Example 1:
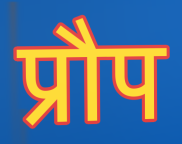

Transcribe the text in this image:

प्रौप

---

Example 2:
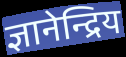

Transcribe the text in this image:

ज्ञानेन्द्रिय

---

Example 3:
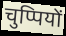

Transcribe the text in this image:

चुप्पियों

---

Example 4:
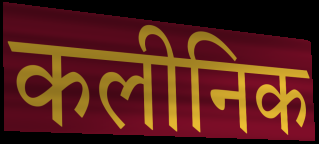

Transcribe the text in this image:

कलीनिक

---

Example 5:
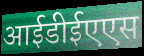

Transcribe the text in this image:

आईडीईएएस